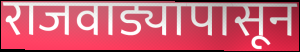
राजवाड्यापासून